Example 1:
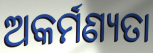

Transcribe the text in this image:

ଅକର୍ମଣ୍ୟତା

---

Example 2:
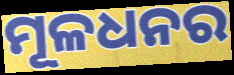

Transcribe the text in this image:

ମୂଳଧନର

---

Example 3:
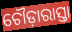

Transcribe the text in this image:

ଚୌଡ଼ାରାସ୍ତା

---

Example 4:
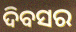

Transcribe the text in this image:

ଦିବସର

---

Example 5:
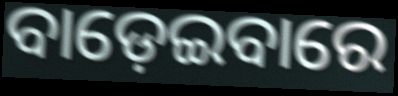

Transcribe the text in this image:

ବାଡ଼େଇବାରେ